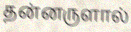
தன்னருளால்